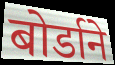
बोर्डाने